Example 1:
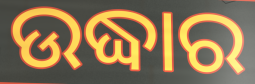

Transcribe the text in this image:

ଉଦ୍ଧାର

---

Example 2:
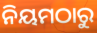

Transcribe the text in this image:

ନିୟମଠାରୁ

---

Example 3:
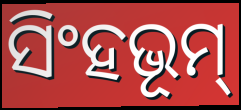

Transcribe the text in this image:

ସିଂହଭୂମ୍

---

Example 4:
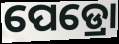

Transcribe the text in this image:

ପେଡ୍ରୋ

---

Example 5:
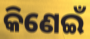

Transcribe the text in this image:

କିଣେଇଁ